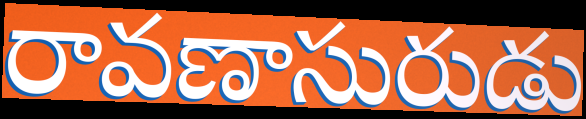
రావణాసురుడు